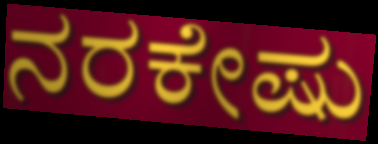
ನರಕೇಷು